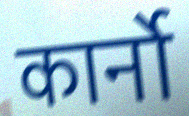
कार्नो